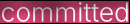
committed